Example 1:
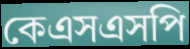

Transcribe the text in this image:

কেএসএসপি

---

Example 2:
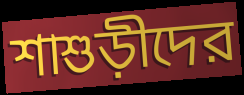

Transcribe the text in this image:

শাশুড়ীদের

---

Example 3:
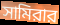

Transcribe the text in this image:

সামিরার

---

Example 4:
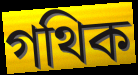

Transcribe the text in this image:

গথিক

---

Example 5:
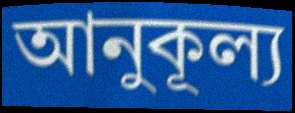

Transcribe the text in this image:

আনুকূল্য